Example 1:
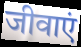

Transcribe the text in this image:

जीवाएं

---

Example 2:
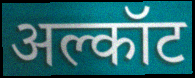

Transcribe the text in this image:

अल्कॉट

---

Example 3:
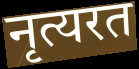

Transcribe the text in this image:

नृत्यरत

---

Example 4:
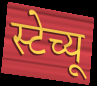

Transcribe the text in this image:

स्टेच्यू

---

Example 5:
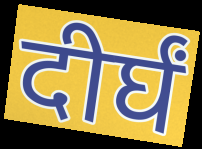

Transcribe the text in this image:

दीर्घं